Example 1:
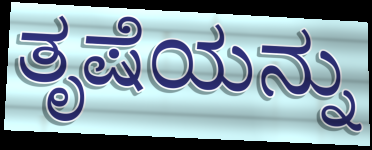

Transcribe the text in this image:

ತೃಷೆಯನ್ನು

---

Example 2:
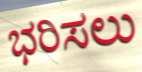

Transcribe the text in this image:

ಭರಿಸಲು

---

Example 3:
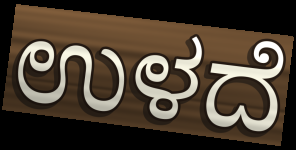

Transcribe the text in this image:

ಉಳದೆ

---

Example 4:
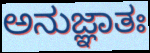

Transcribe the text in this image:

ಅನುಜ್ಞಾತಃ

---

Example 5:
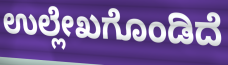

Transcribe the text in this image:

ಉಲ್ಲೇಖಗೊಂಡಿದೆ